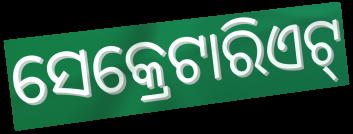
ସେକ୍ରେଟାରିଏଟ୍